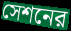
সেশনের